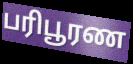
பரிபூரண